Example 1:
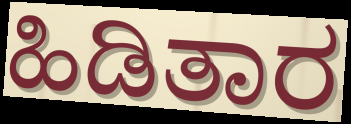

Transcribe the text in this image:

ಹಿಡಿತಾರ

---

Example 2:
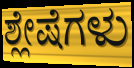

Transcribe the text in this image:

ಶ್ಲೇಷೆಗಳು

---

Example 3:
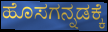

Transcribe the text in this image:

ಹೊಸಗನ್ನಡಕ್ಕೆ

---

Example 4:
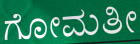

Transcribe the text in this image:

ಗೋಮತೀ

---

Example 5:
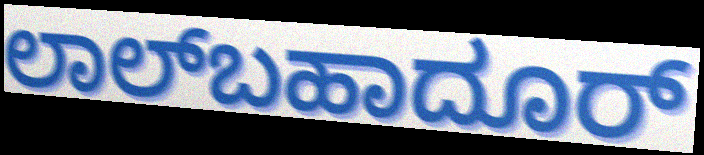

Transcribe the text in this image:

ಲಾಲ್‌ಬಹಾದೂರ್